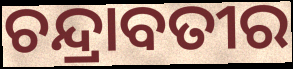
ଚନ୍ଦ୍ରାବତୀର